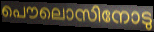
പൌലൊസിനോടു